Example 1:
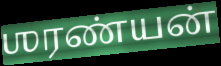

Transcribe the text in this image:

ஶரண்யன்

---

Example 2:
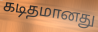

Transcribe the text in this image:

கடிதமானது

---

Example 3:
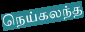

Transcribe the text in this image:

நெய்கலந்த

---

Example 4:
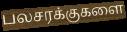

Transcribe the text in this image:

பலசரக்குகளை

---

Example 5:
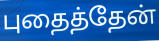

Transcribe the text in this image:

புதைத்தேன்